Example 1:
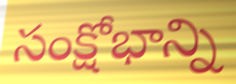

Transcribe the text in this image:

సంక్షోభాన్ని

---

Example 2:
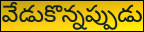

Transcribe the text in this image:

వేడుకొన్నప్పుడు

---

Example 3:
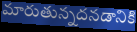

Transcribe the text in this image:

మారుతున్నదనడానికి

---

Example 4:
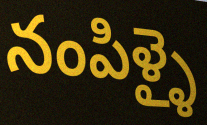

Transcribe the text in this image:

నంపిళ్ళై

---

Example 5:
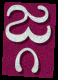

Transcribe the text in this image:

జ్గ